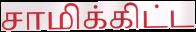
சாமிக்கிட்ட